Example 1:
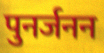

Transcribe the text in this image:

पुनर्जनन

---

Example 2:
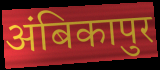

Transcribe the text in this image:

अंबिकापुर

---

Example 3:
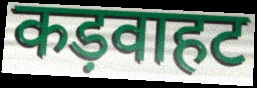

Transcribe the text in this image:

कड़वाहट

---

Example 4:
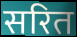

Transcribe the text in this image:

सरित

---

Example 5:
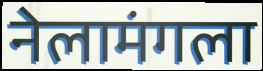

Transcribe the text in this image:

नेलामंगला